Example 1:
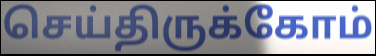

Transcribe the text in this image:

செய்திருக்கோம்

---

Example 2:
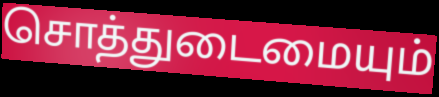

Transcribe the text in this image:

சொத்துடைமையும்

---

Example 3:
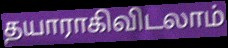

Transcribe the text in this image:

தயாராகிவிடலாம்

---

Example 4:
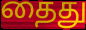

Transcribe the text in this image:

தைது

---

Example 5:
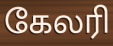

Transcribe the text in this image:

கேலரி